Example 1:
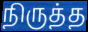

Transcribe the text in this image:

நிருத்த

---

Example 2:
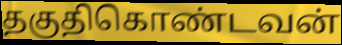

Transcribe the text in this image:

தகுதிகொண்டவன்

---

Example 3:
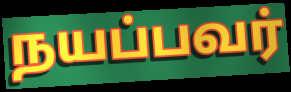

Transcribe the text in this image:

நயப்பவர்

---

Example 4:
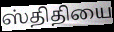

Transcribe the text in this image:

ஸ்திதியை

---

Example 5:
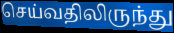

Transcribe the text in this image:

செய்வதிலிருந்து